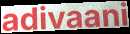
adivaani